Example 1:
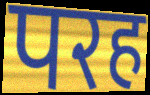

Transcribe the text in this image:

परह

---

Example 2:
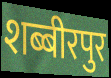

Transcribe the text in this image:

शब्‍बीरपुर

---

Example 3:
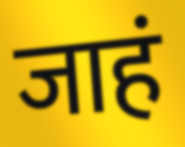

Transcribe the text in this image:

जाहं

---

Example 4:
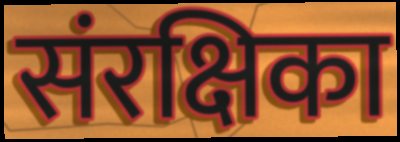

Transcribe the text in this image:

संरक्षिका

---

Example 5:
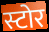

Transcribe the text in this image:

स्‍टोर